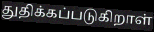
துதிக்கப்படுகிறாள்